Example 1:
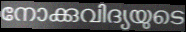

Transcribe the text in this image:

നോക്കുവിദ്യയുടെ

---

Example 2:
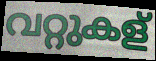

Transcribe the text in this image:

വറ്റുകള്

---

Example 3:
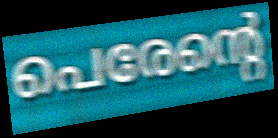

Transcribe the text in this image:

പെരേന്റെ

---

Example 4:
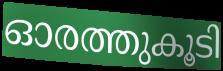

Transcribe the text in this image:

ഓരത്തുകൂടി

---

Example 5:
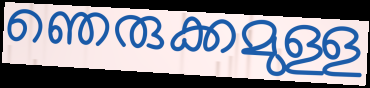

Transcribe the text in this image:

ഞെരുക്കമുള്ള